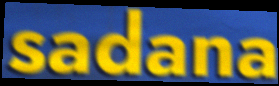
sadana